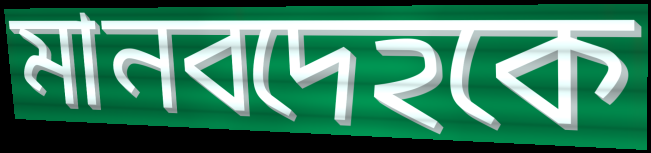
মানবদেহকে